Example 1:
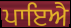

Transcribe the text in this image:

ਪਾਇਐ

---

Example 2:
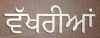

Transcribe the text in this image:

ਵੱਖਰੀਆਂ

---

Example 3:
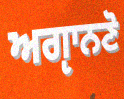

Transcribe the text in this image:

ਅਗੵਾਨਣੋ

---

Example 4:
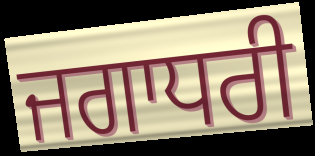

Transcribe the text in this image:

ਜਗਾਧਰੀ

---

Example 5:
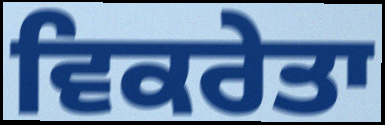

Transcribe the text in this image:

ਵਿਕਰੇਤਾ